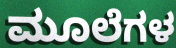
ಮೂಲೆಗಳ